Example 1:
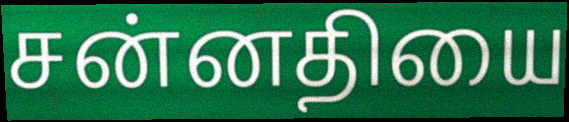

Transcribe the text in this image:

சன்னதியை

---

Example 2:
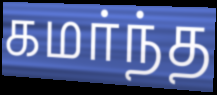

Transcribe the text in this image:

கமர்ந்த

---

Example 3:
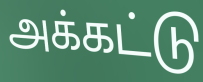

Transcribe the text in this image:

அக்கட்டு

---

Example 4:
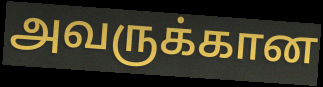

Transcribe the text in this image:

அவருக்கான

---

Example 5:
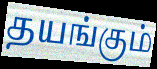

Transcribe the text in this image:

தயங்கும்